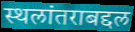
स्थलांतराबद्दल